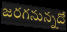
జరగనున్నదో